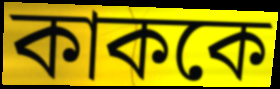
কাককে